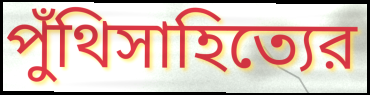
পুঁথিসাহিত্যের